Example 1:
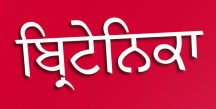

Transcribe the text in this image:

ਬ੍ਰਿਟੇਨਿਕਾ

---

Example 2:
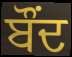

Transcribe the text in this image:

ਬੌਂਦ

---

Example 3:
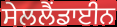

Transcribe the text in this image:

ਸੇਲਲੈਂਡਾਈਨ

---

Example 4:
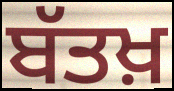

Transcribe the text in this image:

ਬੱਤਖ਼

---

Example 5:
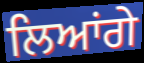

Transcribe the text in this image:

ਲਿਆਂਗੇ